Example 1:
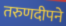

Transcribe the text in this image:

तरुणदीपने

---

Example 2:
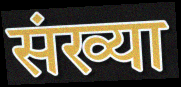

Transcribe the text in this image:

संख्या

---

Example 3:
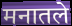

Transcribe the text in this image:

मनातले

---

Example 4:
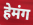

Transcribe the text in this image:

हेमंग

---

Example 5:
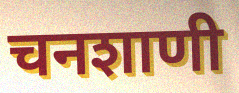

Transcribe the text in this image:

चनशाणी